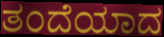
ತಂದೆಯಾದ